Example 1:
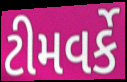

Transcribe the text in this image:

ટીમવર્કે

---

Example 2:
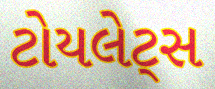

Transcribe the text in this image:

ટોયલેટ્સ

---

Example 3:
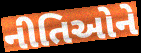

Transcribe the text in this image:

નીતિઓને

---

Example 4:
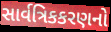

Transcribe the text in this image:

સાર્વત્રિકકરણનો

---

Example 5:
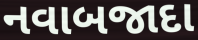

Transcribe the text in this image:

નવાબજાદા